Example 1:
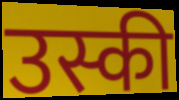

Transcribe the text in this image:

उस्‍की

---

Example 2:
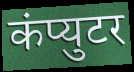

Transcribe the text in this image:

कंप्युटर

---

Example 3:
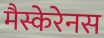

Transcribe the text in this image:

मैस्केरेनस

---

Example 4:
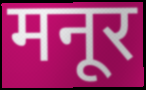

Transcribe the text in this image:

मनूर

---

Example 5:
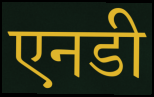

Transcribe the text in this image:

एनडी